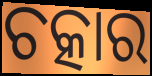
ଚତ୍କାର